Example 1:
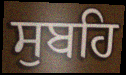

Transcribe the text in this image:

ਸੁਬਹਿ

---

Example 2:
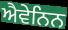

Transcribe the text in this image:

ਐਵੇਨਿਨ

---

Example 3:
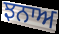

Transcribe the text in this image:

ਝਨਾਅ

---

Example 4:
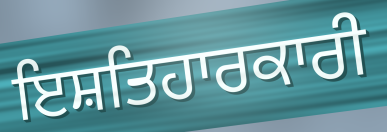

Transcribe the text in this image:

ਇਸ਼ਤਿਹਾਰਕਾਰੀ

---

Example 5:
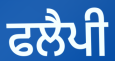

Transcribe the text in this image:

ਫਲੈਪੀ